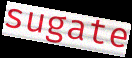
sugate